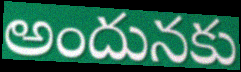
అందునకు